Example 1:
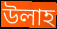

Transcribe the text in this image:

উলাহ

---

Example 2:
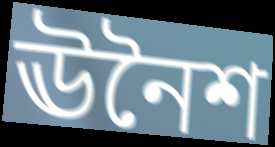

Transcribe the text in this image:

ঊনৈশ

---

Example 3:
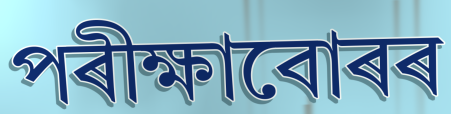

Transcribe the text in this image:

পৰীক্ষাবোৰৰ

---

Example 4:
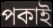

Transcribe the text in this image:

পকাই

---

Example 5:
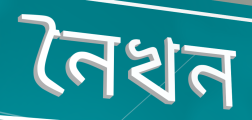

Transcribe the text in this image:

নৈখন